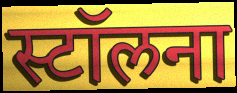
स्टॉलना